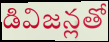
డివిజన్లతో